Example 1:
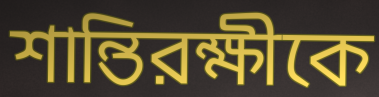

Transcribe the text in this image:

শান্তিরক্ষীকে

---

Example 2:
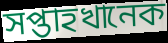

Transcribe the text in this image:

সপ্তাহখানেক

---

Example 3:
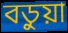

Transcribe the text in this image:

বডুয়া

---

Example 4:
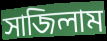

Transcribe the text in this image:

সাজিলাম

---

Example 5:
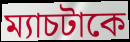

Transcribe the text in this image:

ম্যাচটাকে